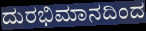
ದುರಭಿಮಾನದಿಂದ